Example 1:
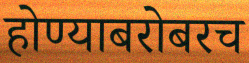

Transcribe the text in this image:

होण्याबरोबरच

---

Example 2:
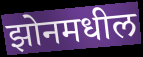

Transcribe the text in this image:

झोनमधील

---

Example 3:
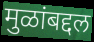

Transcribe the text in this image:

मुळांबद्दल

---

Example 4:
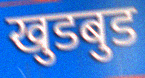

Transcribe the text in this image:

खुडबुड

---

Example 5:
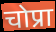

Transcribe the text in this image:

चोप्रा